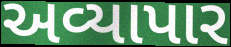
અવ્યાપાર